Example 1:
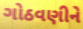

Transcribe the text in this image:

ગોઠવણીને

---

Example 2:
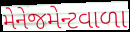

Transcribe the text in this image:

મેનેજમેન્ટવાળા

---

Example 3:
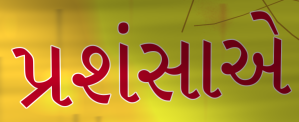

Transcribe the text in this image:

પ્રશંસાએ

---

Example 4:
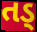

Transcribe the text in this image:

તડ્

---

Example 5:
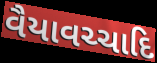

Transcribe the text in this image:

વૈયાવચ્ચાદિ